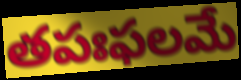
తపఃఫలమే